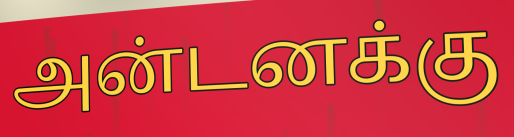
அன்டனக்கு